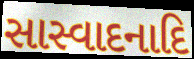
સાસ્વાદનાદિ